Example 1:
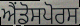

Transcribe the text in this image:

ਐਂਡੋਸਪੋਰਸ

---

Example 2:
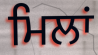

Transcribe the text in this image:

ਮਿਲਾਂ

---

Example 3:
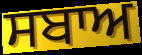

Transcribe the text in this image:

ਸਬਾਅ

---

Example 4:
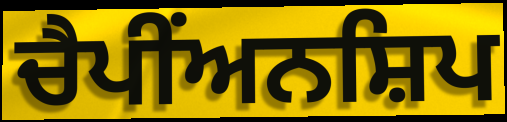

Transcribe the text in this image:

ਚੈਪੀਂਅਨਸ਼ਿਪ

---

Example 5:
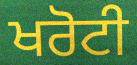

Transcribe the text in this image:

ਖਰੋਟੀ